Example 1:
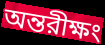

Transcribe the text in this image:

অন্তরীক্ষং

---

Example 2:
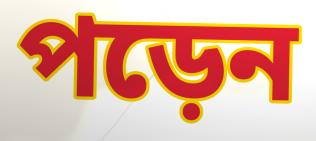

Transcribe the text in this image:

পড়েন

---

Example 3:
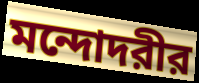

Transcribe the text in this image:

মন্দোদরীর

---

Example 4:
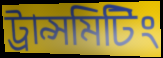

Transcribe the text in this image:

ট্রান্সমিটিং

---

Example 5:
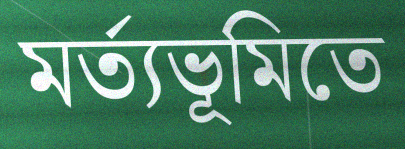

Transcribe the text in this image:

মর্ত্যভূমিতে